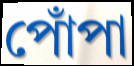
পোঁপা